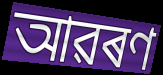
আৱৰণ